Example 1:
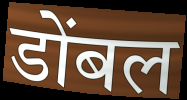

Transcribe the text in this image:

डोंबल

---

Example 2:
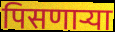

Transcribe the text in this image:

पिसणाऱ्या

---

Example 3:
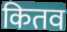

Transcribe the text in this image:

कितव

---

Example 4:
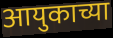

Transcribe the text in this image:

आयुकाच्या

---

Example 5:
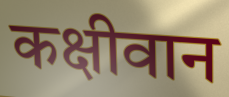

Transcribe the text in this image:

कक्षीवान